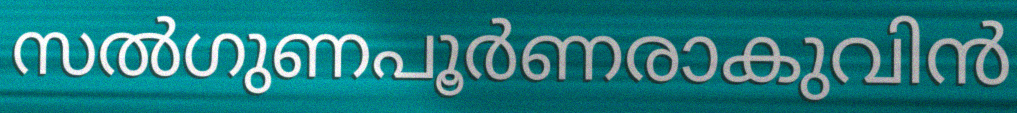
സൽഗുണപൂർണരാകുവിൻ